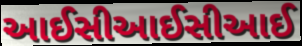
આઈસીઆઈસીઆઈ